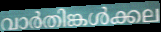
വാർതിങ്കൾക്കല